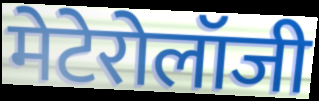
मेटेरोलॉजी